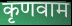
कृणवाम